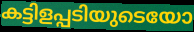
കട്ടിളപ്പടിയുടെയോ